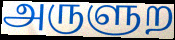
அருளுற